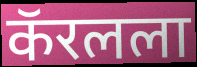
कॅरलला